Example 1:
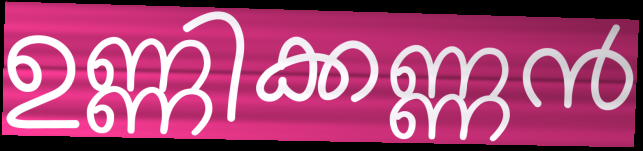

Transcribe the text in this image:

ഉണ്ണിക്കണ്ണൻ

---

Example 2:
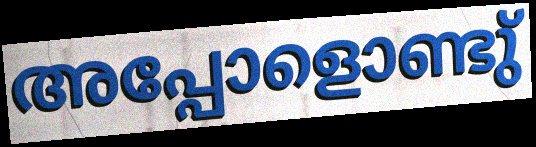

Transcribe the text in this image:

അപ്പോളൊണ്ടു്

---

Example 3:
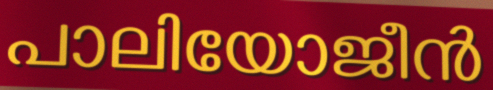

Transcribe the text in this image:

പാലിയോജീൻ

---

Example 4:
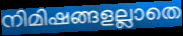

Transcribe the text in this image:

നിമിഷങ്ങളല്ലാതെ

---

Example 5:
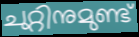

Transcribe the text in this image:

ചുറ്റിനുമുണ്ട്